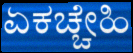
ಏಕಚ್ಚೇಹಿ